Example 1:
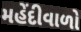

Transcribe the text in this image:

મહેંદીવાળો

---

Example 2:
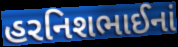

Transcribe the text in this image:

હરનિશભાઈનાં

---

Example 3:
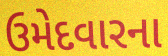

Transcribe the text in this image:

ઉમેદવારના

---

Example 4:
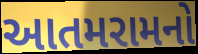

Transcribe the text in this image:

આતમરામનો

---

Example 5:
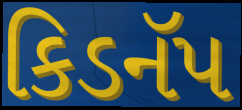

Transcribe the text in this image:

કિડનૅપ